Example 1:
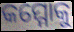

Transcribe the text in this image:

କମ୍ମୋକୁ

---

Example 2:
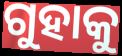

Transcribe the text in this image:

ଗୁହାକୁ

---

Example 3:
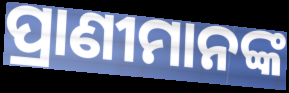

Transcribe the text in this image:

ପ୍ରାଣୀମାନଙ୍କ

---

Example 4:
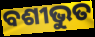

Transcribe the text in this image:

ବଶୀଭୁତ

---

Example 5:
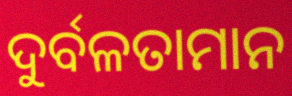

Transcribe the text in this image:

ଦୁର୍ବଳତାମାନ